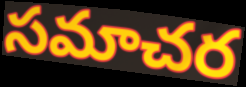
సమాచర